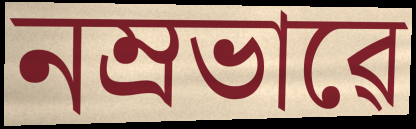
নম্ৰভাৱে